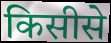
किसीसे